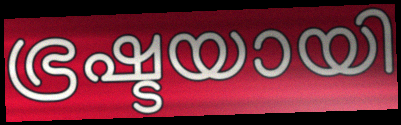
ഭ്രഷ്ടയായി